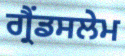
ਗ੍ਰੈਂਡਸਲੇਮ